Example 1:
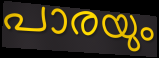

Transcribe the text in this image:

പാരയും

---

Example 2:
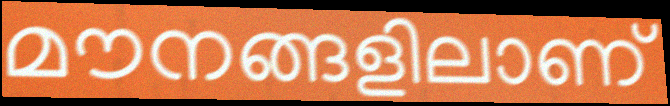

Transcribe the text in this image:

മൗനങ്ങളിലാണ്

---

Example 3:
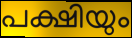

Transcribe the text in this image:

പക്ഷിയും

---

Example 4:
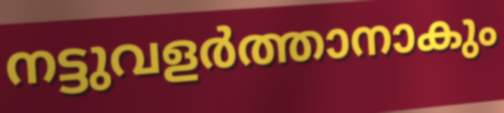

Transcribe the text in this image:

നട്ടുവളർത്താനാകും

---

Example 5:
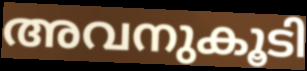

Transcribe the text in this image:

അവനുകൂടി